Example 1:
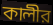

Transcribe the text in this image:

কালীর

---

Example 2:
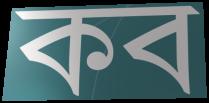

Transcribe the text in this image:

কব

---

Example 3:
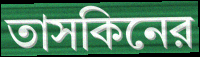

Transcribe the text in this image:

তাসকিনের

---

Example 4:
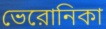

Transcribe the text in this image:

ভেরোনিকা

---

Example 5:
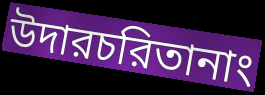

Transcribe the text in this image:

উদারচরিতানাং